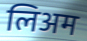
लिअम